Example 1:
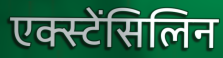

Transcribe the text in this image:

एक्स्टेंसिलिन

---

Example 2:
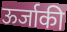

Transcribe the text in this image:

ऊर्जाकी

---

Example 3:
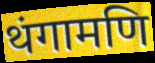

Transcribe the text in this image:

थंगामणि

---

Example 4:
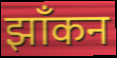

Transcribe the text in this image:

झाँकन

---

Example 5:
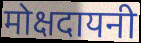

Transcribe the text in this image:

मोक्षदायनी